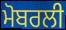
ਮੋਬਰਲੀ